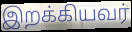
இறக்கியவர்